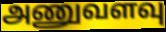
அணுவளவு